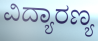
ವಿದ್ಯಾರಣ್ಯ